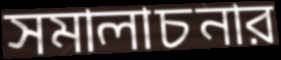
সমালাচনার